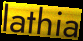
lathia